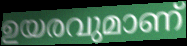
ഉയരവുമാണ്